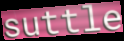
suttle